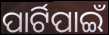
ପାର୍ଟିପାଇଁ